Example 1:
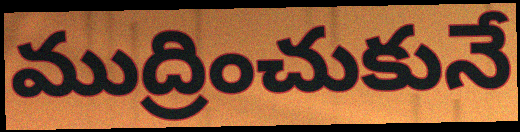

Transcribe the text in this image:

ముద్రించుకునే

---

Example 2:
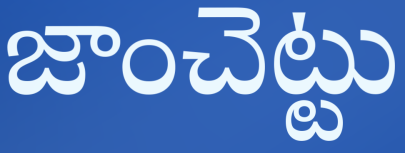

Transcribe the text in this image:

జాంచెట్టు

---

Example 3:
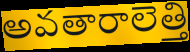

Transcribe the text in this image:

అవతారాలెత్తి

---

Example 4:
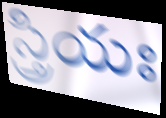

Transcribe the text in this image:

స్త్రియః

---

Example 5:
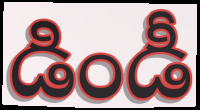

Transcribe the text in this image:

డిండీ